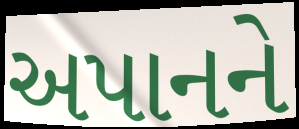
અપાનને